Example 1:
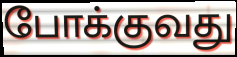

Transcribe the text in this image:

போக்குவது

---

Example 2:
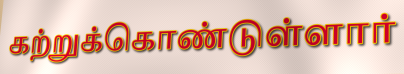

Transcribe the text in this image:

கற்றுக்கொண்டுள்ளார்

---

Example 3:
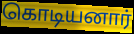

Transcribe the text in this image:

கொடியனார்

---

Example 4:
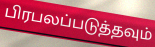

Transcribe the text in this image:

பிரபலப்படுத்தவும்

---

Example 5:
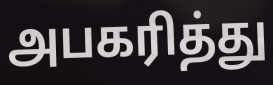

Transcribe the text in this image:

அபகரித்து